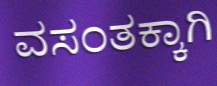
ವಸಂತಕ್ಕಾಗಿ